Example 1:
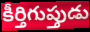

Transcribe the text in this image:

కీర్తిగుప్తుడు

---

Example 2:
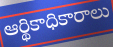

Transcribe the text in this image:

ఆర్థికాధికారాలు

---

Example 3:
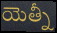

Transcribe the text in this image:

యెత్నీ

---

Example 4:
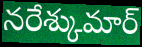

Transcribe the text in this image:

నరేశ్కుమార్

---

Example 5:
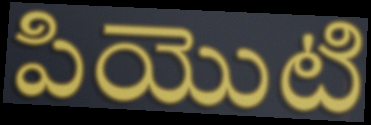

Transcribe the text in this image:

పియొటి